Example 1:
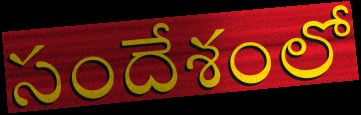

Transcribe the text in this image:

సందేశంలో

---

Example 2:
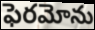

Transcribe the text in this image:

ఫెరమోను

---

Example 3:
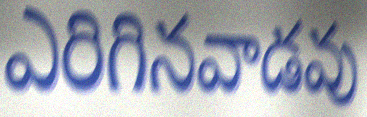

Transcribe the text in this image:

ఎరిగినవాడవు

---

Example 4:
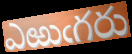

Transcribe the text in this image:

ఎఱుఁగరు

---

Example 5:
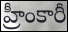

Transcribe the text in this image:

హ్రీంకారీ